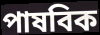
পাষবিক